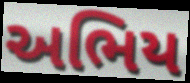
અભિય